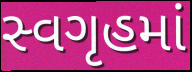
સ્વગૃહમાં